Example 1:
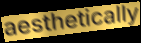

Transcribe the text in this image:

aesthetically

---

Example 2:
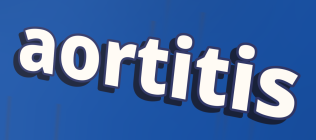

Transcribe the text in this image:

aortitis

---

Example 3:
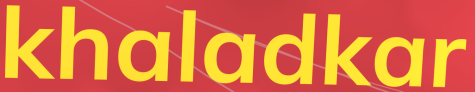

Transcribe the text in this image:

khaladkar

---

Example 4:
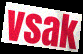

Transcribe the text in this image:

vsak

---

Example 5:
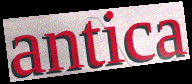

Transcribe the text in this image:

antica